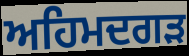
ਅਹਿਮਦਗੜ